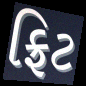
ફ્રિટ